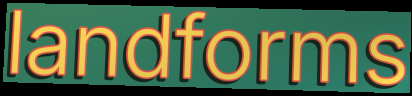
landforms